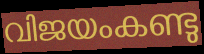
വിജയംകണ്ടു